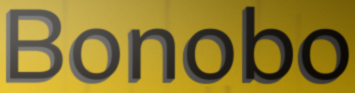
Bonobo